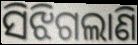
ସିଝିଗଲାଣି